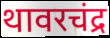
थावरचंद्र